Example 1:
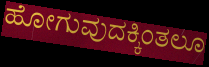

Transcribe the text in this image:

ಹೋಗುವುದಕ್ಕಿಂತಲೂ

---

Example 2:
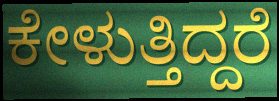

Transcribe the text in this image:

ಕೇಳುತ್ತಿದ್ದರೆ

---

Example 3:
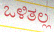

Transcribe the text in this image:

ಒಳಿತಲ್ಲ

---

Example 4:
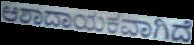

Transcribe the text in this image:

ಆಶಾದಾಯಕವಾಗಿದೆ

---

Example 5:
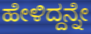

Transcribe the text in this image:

ಹೇಳಿದ್ದನ್ನೇ